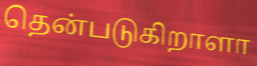
தென்படுகிறாளா